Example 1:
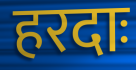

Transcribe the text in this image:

हरदाः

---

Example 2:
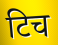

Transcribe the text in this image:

टिच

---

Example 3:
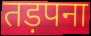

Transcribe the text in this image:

तड़पना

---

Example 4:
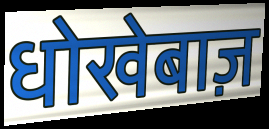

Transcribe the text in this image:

धोखेबाज़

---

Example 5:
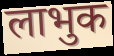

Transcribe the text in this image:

लाभुक